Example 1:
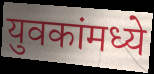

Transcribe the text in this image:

युवकांमध्ये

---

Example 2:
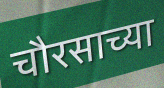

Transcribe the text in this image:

चौरसाच्या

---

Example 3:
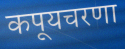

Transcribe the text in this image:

कपूयचरणा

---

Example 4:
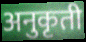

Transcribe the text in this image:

अनुकृती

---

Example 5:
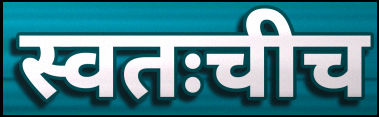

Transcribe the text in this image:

स्वतःचीच